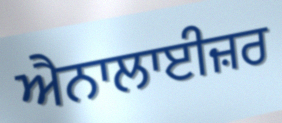
ਐਨਾਲਾਈਜ਼ਰ